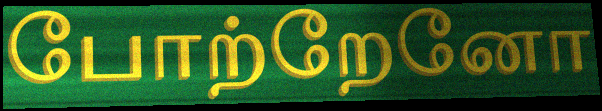
போற்றேனோ